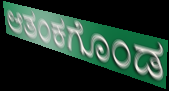
ಆತಂಕಗೊಂಡ